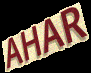
AHAR